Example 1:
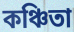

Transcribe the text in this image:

কঞ্চিতা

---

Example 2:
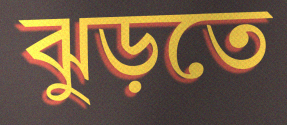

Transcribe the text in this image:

ঝুড়তে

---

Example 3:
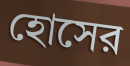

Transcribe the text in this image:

হোসের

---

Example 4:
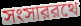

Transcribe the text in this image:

সংসাররথে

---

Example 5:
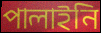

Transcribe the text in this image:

পালাইনি